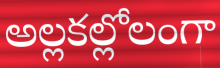
అల్లకల్లోలంగా